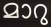
മാറു